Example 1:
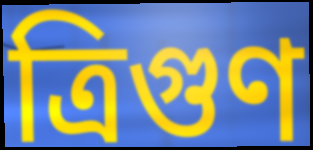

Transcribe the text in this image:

ত্রিগুণ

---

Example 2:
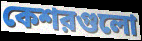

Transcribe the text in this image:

কেশরগুলো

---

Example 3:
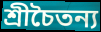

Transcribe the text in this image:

শ্রীচৈতন্য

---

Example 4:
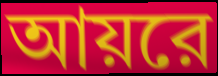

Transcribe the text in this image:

আয়রে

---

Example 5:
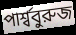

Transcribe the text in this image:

পার্শ্ববুরুজ